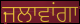
ਜਲਾਵਾਂਗਾ